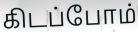
கிடப்போம்